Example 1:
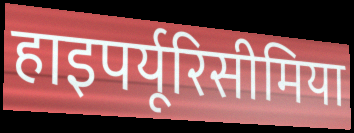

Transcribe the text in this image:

हाइपर्यूरिसीमिया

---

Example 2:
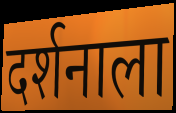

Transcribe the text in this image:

दर्शनाला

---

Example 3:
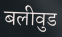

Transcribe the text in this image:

बलीवुड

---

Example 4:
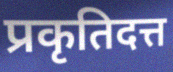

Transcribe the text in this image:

प्रकृतिदत्त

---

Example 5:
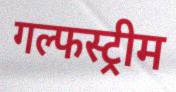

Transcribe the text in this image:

गल्फस्ट्रीम